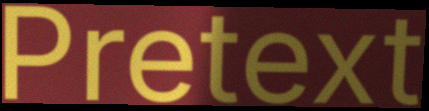
Pretext